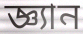
জ্ঞ্যান